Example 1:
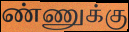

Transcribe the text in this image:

ண்ணுக்கு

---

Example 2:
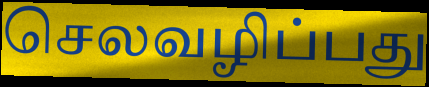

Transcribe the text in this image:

செலவழிப்பது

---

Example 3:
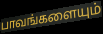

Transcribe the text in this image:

பாவங்களையும்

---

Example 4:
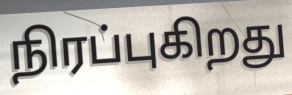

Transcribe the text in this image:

நிரப்புகிறது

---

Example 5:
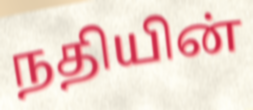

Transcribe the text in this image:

நதியின்